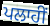
ਪਲਾਹੀਂ